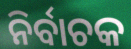
ନିର୍ବାଚକ